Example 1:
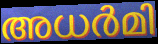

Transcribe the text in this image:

അധർമി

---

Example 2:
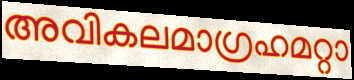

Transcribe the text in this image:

അവികലമാഗ്രഹമറ്റാ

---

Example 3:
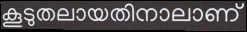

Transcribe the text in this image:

കൂടുതലായതിനാലാണ്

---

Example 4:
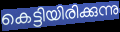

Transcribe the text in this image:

കെട്ടിയിരിക്കുന്നു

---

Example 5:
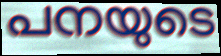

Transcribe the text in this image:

പനയുടെ